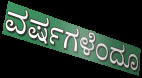
ವರ್ಷಗಳೆಂದೂ